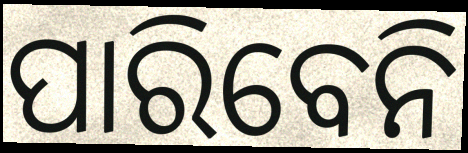
ପାରିବେନି